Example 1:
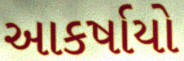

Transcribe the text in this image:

આકર્ષાયો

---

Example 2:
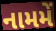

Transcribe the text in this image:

નામમેં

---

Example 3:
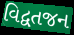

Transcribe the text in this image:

વિદ્વતજન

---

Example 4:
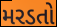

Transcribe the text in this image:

મરડતો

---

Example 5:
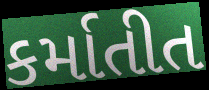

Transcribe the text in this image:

કર્માતીત